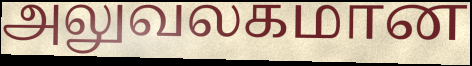
அலுவலகமான